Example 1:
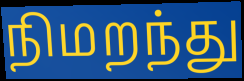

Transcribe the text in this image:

நிமறந்து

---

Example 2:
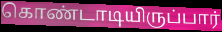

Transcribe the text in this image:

கொண்டாடியிருப்பார்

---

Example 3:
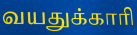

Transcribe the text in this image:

வயதுக்காரி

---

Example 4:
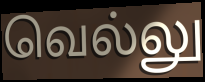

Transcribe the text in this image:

வெல்லு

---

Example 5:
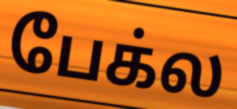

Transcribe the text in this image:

பேக்ல